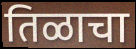
तिळाचा